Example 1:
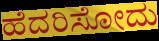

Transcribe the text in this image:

ಹೆದರಿಸೋದು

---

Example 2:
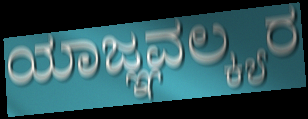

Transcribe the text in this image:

ಯಾಜ್ಞವಲ್ಕ್ಯರ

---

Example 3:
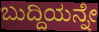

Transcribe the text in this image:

ಬುದ್ದಿಯನ್ನೇ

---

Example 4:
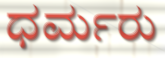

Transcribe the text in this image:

ಧರ್ಮರು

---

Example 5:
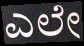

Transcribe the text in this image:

ಎಲೇ